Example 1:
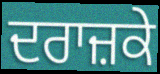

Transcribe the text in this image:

ਦਰਾਜ਼ਕੇ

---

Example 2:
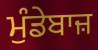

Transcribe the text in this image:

ਮੁੰਡੇਬਾਜ਼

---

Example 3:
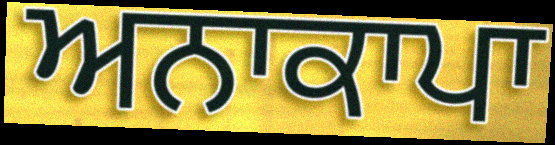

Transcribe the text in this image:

ਅਨਾਕਾਪਾ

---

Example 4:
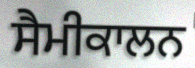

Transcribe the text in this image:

ਸੈਮੀਕਾਲਨ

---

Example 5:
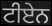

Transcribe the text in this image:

ਟੀਏਨ